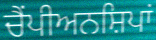
ਚੈਂਪੀਅਨਸ਼ਿਪਾਂ